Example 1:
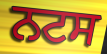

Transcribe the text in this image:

ਨਟਸ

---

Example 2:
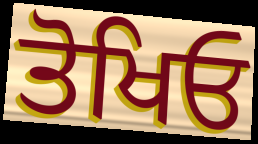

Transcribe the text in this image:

ਤੋਖਿਓ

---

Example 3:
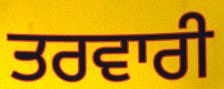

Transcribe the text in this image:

ਤਰਵਾਰੀ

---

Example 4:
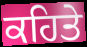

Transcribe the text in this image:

ਕਹਿਤੇ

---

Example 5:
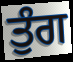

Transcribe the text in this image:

ਤੁੰਗ